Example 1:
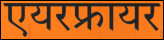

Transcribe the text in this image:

एयरफ्रायर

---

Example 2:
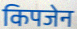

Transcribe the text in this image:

किपजेन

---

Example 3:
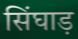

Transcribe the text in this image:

सिंघाड़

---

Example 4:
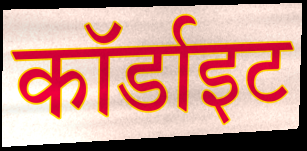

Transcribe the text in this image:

कॉर्डाइट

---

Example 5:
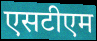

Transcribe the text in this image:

एसटीएम